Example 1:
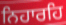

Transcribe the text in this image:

ਨਿਹਾਰਹਿ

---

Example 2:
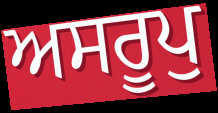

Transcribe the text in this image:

ਅਸਰੂਪੁ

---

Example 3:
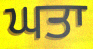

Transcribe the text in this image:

ਘਤਾ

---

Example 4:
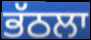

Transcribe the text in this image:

ਭੱਠਲਾ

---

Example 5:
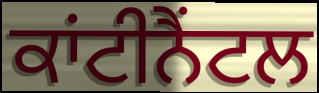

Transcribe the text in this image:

ਕਾਂਟੀਨੈਂਟਲ